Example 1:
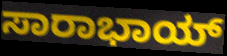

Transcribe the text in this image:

ಸಾರಾಭಾಯ್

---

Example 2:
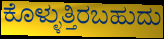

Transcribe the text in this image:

ಕೊಳ್ಳುತ್ತಿರಬಹುದು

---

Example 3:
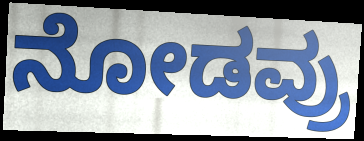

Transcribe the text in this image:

ನೋಡವ್ರು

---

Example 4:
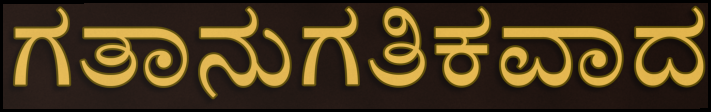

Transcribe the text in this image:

ಗತಾನುಗತಿಕವಾದ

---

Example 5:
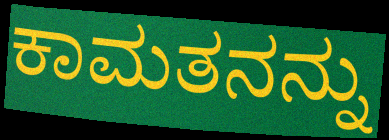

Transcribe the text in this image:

ಕಾಮತನನ್ನು